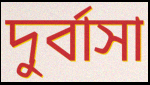
দুর্বাসা